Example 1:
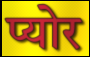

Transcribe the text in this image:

प्योर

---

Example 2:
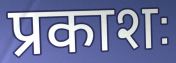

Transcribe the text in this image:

प्रकाशः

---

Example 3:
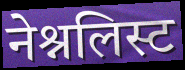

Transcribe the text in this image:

नेश्नलिस्ट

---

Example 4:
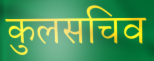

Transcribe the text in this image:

कुलसचिव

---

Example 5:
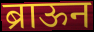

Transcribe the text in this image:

ब्राऊन